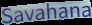
Savahana